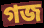
গজ